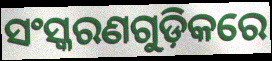
ସଂସ୍କରଣଗୁଡ଼ିକରେ